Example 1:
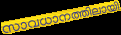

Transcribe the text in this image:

സാവധാനത്തിലായി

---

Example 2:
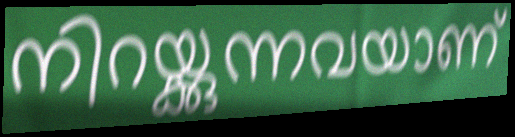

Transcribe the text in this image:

നിറയ്ക്കുന്നവയാണ്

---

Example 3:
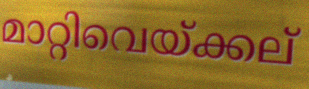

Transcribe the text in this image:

മാറ്റിവെയ്ക്കല്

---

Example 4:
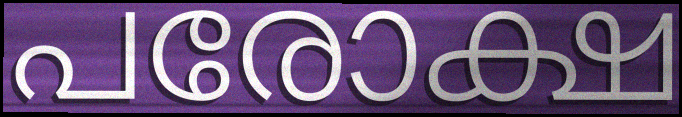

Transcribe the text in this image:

പരോക്ഷ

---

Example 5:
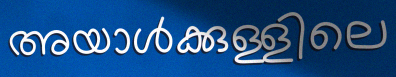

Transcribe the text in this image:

അയാൾക്കുള്ളിലെ